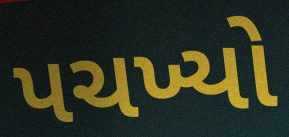
પચખ્યો